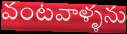
వంటవాళ్ళను